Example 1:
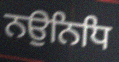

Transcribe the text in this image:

ਨਉਨਿਧਿ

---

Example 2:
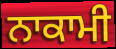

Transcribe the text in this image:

ਨਾਕਾਮੀ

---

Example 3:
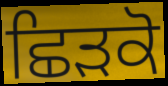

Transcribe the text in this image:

ਛਿੜਕੋ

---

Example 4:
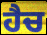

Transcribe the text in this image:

ਹੈਚ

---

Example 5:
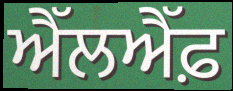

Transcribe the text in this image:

ਐੱਲਐੱਫ਼